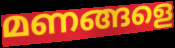
മണങ്ങളെ